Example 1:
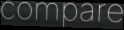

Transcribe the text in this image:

compare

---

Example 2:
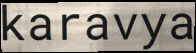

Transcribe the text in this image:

karavya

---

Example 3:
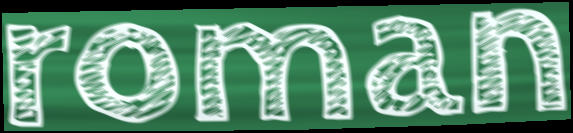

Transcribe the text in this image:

roman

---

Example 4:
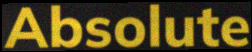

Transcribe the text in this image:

Absolute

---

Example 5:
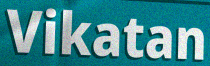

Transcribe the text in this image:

Vikatan